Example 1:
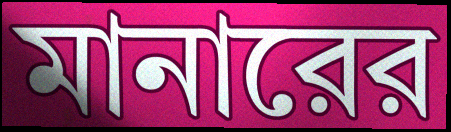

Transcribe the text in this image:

মানারের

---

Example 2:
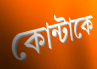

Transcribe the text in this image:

কোন্টাকে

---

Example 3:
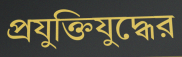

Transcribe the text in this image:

প্রযুক্তিযুদ্ধের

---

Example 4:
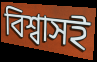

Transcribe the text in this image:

বিশ্বাসই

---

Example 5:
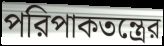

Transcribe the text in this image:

পরিপাকতন্ত্রের